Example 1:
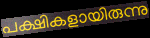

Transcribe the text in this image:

പക്ഷികളായിരുന്നു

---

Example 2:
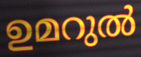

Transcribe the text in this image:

ഉമറുൽ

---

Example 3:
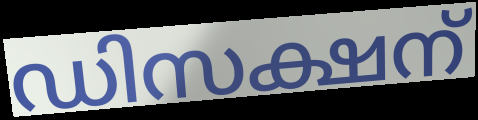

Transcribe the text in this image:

ഡിസക്ഷന്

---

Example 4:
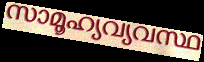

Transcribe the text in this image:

സാമൂഹ്യവ്യവസ്ഥ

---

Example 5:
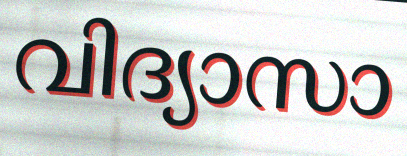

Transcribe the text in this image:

വിദ്യാസാ